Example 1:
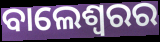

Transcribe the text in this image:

ବାଲେଶ୍ୱରର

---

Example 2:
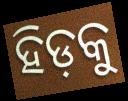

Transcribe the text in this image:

ହିଡ଼କୁ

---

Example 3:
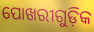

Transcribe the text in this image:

ପୋଖରୀଗୁଡ଼ିକ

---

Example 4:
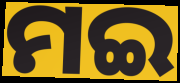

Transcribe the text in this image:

ମଇ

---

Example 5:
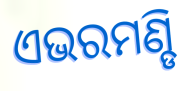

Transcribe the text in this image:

ଏଭରମଣ୍ଡି